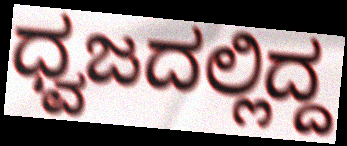
ಧ್ವಜದಲ್ಲಿದ್ದ